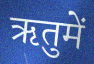
ऋतुमें